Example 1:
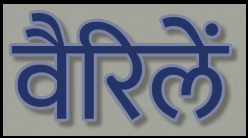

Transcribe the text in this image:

वैरिलें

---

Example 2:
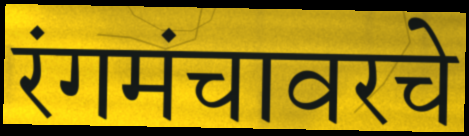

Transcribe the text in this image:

रंगमंचावरचे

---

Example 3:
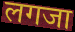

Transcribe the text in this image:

लगजा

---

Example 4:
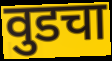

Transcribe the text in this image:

वुडचा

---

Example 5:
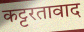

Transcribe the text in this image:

कट्टरतावाद